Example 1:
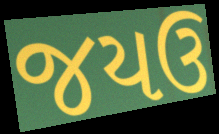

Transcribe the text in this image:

જયઉ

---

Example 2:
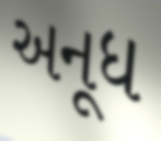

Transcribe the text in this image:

અનૂધ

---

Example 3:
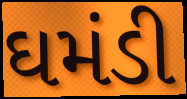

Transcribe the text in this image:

ઘમંડી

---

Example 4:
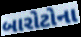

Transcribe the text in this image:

બારોટોના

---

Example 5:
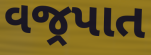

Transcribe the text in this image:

વજ્રપાત